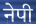
नेपी